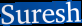
Suresh